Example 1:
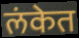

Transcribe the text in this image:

लंकेत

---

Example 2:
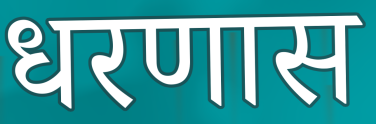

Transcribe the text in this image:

धरणास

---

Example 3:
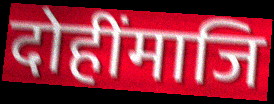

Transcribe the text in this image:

दोहींमाजि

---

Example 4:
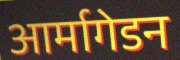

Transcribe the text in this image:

आर्मागेडन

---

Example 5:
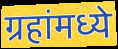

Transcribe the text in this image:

ग्रहांमध्ये